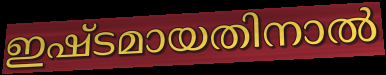
ഇഷ്ടമായതിനാൽ